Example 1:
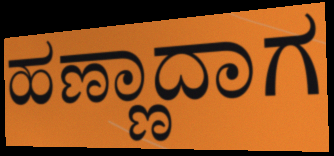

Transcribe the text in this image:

ಹಣ್ಣಾದಾಗ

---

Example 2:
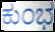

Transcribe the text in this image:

ಕುಂಭ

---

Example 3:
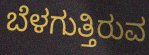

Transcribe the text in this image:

ಬೆಳಗುತ್ತಿರುವ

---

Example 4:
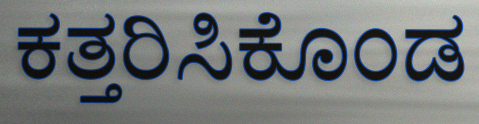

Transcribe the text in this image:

ಕತ್ತರಿಸಿಕೊಂಡ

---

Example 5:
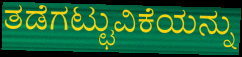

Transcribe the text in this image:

ತಡೆಗಟ್ಟುವಿಕೆಯನ್ನು